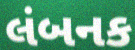
લંબનક